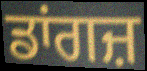
ਡਾਂਗਜ਼